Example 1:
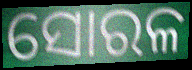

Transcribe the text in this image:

ସୋରଳ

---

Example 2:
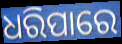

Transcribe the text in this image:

ଧରିପାରେ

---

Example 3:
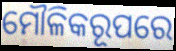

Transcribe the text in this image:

ମୌଳିକରୂପରେ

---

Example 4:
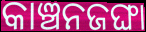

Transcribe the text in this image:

କାଞ୍ଚନଜଙ୍ଘା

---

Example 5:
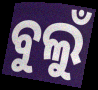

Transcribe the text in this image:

ବୁଲୁଁ